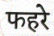
फहरे